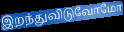
இறந்துவிடுவோமோ